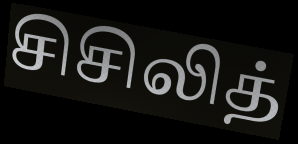
சிசிலித்